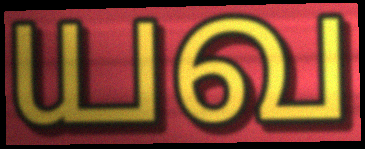
யவ